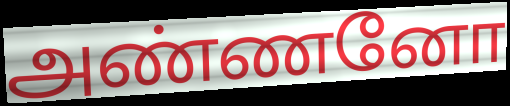
அண்ணனோ